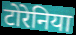
टोरेनिया